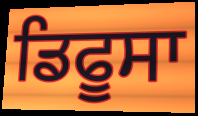
ਡਿਫੂਸਾ